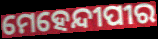
ମେହେନ୍ଦୀପୀର